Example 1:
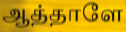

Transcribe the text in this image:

ஆத்தாளே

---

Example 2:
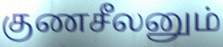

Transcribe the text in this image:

குணசீலனும்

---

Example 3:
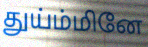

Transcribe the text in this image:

துய்ம்மினே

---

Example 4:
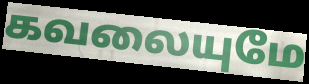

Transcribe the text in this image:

கவலையுமே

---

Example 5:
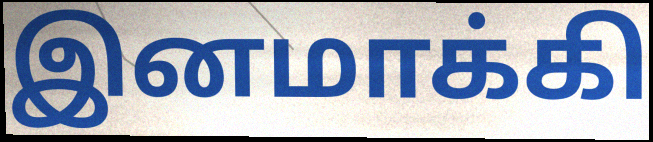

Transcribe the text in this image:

இனமாக்கி